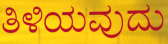
ತಿಳಿಯವುದು